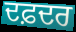
ਦਫ਼ਦਰ